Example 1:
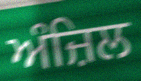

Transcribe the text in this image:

ਅੰਜ਼ਿਲ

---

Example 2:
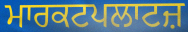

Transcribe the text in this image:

ਮਾਰਕਟਪਲਾਟਜ਼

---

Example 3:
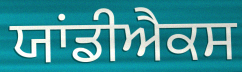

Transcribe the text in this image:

ਯਾਂਡੀਐਕਸ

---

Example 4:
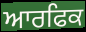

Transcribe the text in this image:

ਆਰਫਿਕ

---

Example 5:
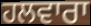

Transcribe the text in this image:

ਹਲਵਾਰਾ